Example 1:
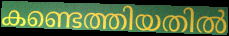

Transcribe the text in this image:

കണ്ടെത്തിയതിൽ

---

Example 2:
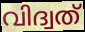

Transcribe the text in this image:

വിദ്വത്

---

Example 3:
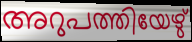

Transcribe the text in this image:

അറുപത്തിയേഴു്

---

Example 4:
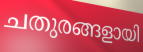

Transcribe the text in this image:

ചതുരങ്ങളായി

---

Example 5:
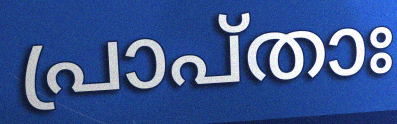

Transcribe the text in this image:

പ്രാപ്താഃ